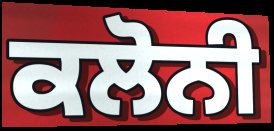
ਕਲੋਨੀ